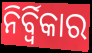
ନିର୍ବ୍ବିକାର